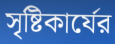
সৃষ্টিকার্যের